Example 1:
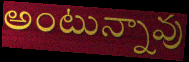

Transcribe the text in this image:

అంటున్నావు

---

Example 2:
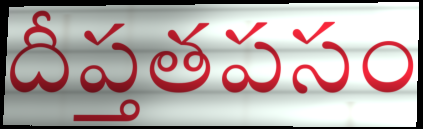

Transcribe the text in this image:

దీప్తతపసం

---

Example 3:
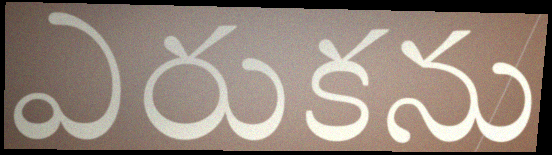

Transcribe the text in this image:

ఎరుకను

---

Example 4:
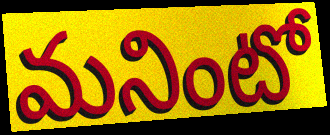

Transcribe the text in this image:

మనింటో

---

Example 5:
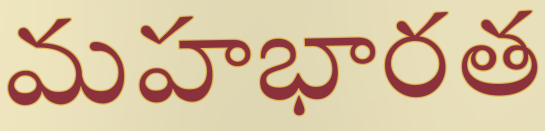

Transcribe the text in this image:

మహభారత